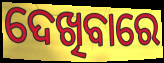
ଦେଖିବାରେ